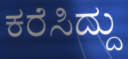
ಕರೆಸಿದ್ದು